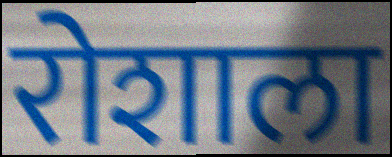
रोशाला